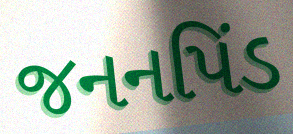
જનનપિંડ